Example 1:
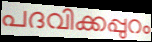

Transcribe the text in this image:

പദവിക്കപ്പുറം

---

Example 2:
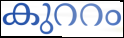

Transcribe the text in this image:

കുററം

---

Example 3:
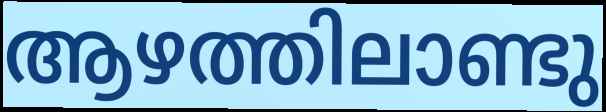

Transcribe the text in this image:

ആഴത്തിലാണ്ടു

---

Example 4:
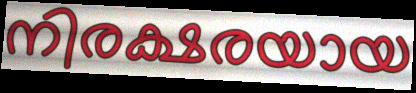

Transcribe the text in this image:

നിരക്ഷരയായ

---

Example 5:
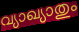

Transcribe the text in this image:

വ്യാഖ്യാതും